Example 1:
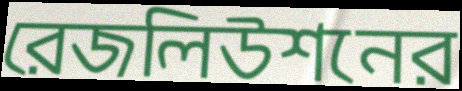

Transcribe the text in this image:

রেজলিউশনের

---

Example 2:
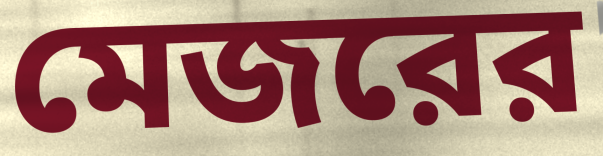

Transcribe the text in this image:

মেজরের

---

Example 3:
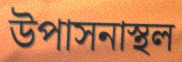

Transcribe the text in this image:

উপাসনাস্থল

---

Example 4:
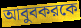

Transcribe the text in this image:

আবুবকরকে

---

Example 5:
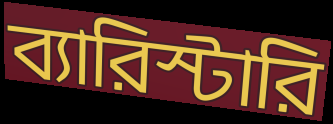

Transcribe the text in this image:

ব্যারিস্টারি